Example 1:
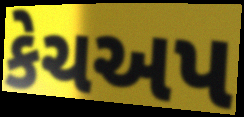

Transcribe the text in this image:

કેચઅપ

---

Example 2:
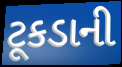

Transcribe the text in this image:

ટૂકડાની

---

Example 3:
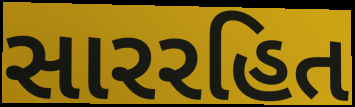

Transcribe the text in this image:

સારરહિત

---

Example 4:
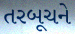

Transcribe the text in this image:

તરબૂચને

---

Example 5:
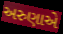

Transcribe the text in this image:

અરુણાએ